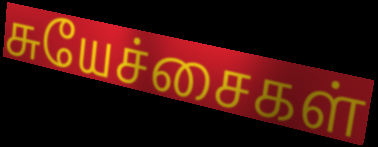
சுயேச்சைகள்